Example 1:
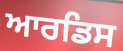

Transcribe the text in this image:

ਆਰਡਿਸ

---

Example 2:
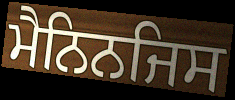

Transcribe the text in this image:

ਮੈਨਿਨਜਿਸ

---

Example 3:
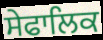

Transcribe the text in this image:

ਸੇਫਾਲਿਕ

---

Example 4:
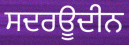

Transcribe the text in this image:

ਸਦਰਊਦੀਨ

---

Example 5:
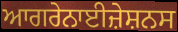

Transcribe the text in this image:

ਆਗਰੇਨਾਈਜ਼ੇਸ਼ਨਸ